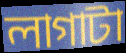
লাগাটা